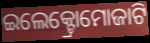
ଇଲେକ୍ଟ୍ରୋମୋଜାଟି